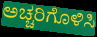
ಅಚ್ಚರಿಗೊಳಿಸಿ